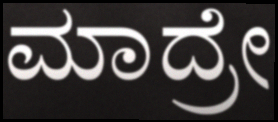
ಮಾದ್ರೇ